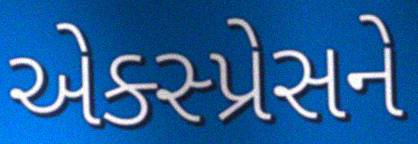
એક્સ્પ્રેસને